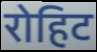
रोहिट